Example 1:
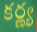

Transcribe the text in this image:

కర్ణ్య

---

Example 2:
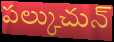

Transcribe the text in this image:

పల్కుచున్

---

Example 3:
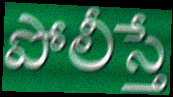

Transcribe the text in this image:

పోలీస్తే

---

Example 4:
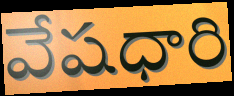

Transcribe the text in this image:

వేషధారి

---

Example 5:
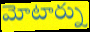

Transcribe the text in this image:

మోటార్ను